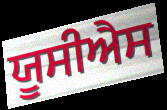
ਯੂਸੀਐਸ